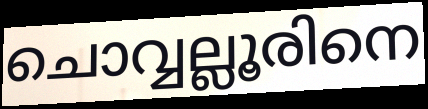
ചൊവ്വല്ലൂരിനെ